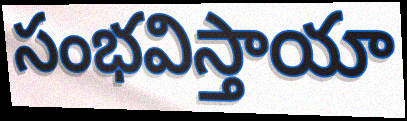
సంభవిస్తాయా